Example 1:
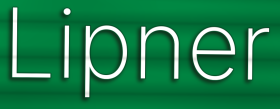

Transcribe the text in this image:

Lipner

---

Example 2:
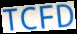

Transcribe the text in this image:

TCFD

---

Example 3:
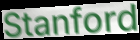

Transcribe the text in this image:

Stanford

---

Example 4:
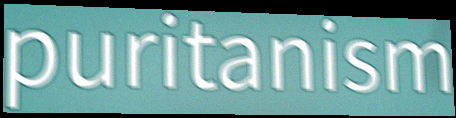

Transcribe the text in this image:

puritanism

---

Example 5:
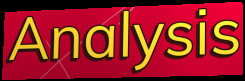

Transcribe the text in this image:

Analysis